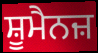
ਸ਼ੂਮੈਨਜ਼